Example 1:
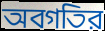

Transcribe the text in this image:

অবগতির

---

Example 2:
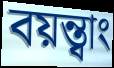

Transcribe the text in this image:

বয়ন্ত্বাং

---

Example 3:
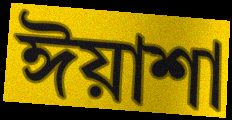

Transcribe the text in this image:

ঈয়াশা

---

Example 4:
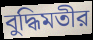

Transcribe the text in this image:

বুদ্ধিমতীর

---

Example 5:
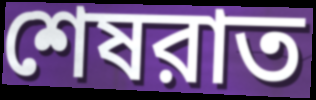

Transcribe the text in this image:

শেষরাত